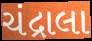
ચંદ્રાલા